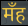
मँह